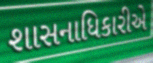
શાસનાધિકારીએ